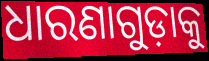
ଧାରଣାଗୁଡ଼ାକୁ